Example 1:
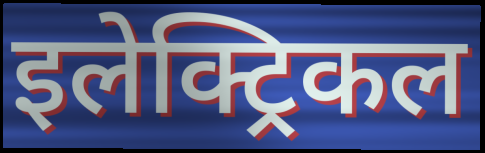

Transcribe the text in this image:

इलेक्ट्रिकल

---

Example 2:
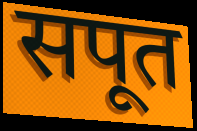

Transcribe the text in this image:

सपूत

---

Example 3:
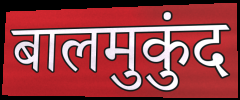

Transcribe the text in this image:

बालमुकुंद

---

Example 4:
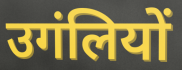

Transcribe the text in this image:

उगंलियों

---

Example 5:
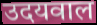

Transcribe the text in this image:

उदयवाल